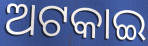
ଅଟକାଇ